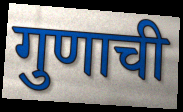
गुणाची